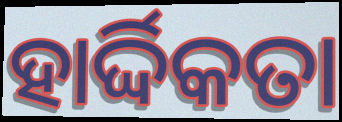
ହାର୍ଦ୍ଦିକତା